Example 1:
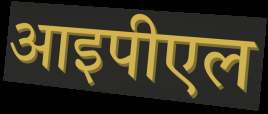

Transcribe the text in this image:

आइपीएल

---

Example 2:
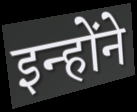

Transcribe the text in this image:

इन्होंने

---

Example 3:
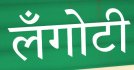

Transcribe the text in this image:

लँगोटी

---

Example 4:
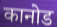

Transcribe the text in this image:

कानोड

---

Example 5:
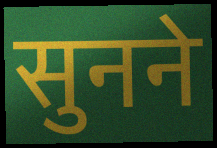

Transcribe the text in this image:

सुनने